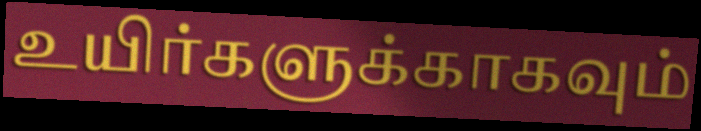
உயிர்களுக்காகவும்